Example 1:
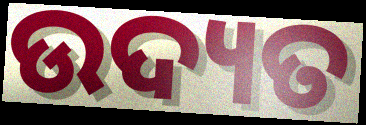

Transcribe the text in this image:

ଉଦ୍ୟତ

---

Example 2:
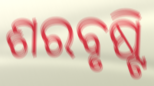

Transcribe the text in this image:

ଶରବୃଷ୍ଟି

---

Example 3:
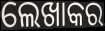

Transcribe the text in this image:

ଲେଖାକର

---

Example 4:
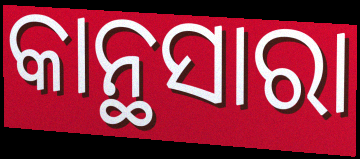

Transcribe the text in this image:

କାନ୍ଥସାରା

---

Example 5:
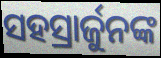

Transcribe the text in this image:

ସହସ୍ରାର୍ଜୁନଙ୍କ